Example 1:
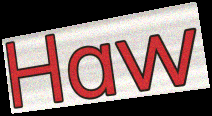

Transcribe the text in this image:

Haw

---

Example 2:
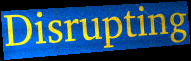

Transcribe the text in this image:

Disrupting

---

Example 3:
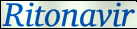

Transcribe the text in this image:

Ritonavir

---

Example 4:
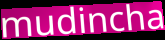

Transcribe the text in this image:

mudincha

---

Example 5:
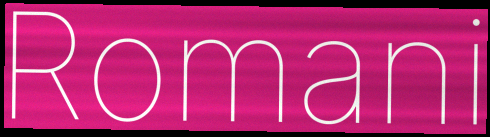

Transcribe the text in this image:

Romani